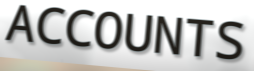
ACCOUNTS